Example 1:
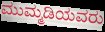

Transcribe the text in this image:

ಮುಮ್ಮಡಿಯವರು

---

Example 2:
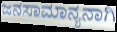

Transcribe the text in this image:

ಜನಸಾಮಾನ್ಯನಾಗಿ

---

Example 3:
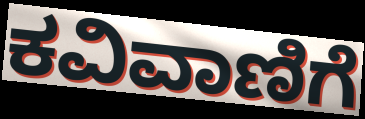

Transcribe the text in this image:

ಕವಿವಾಣಿಗೆ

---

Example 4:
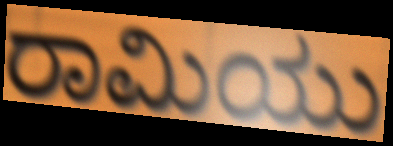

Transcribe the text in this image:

ರಾಮಿಯು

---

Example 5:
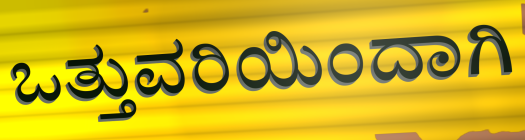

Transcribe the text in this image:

ಒತ್ತುವರಿಯಿಂದಾಗಿ